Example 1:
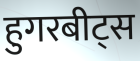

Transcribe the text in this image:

हुगरबीट्स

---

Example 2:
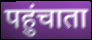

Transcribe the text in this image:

पहुंचाता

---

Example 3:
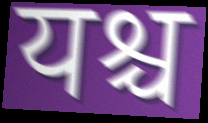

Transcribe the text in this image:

यश्च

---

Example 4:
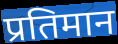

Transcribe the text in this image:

प्रतिमान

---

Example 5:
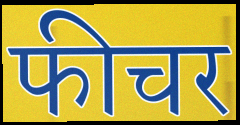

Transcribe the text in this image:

फीचर